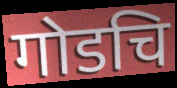
गोडचि